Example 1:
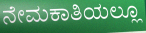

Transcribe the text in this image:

ನೇಮಕಾತಿಯಲ್ಲೂ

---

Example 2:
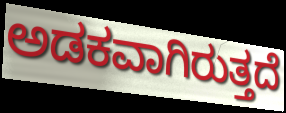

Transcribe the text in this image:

ಅಡಕವಾಗಿರುತ್ತದೆ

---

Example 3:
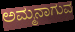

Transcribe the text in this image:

ಅಮ್ಮನಾಗುವ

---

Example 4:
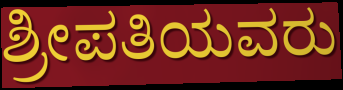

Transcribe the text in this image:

ಶ್ರೀಪತಿಯವರು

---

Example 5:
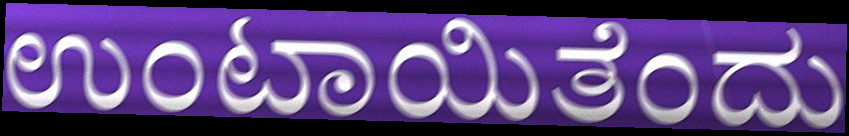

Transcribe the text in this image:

ಉಂಟಾಯಿತೆಂದು